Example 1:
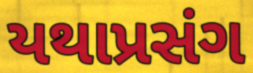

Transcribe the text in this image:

યથાપ્રસંગ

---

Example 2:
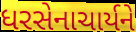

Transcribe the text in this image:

ધરસેનાચાર્યને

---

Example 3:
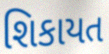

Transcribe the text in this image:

શિકાયત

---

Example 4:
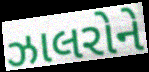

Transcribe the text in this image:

ઝાલરોને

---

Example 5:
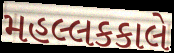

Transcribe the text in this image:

મહલ્લકકાલે